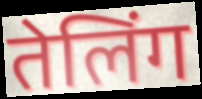
तेलिंग